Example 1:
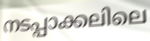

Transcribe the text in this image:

നടപ്പാക്കലിലെ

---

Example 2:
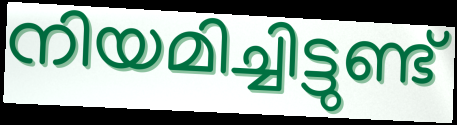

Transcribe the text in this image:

നിയമിച്ചിട്ടുണ്ട്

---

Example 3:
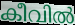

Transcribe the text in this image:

കീവിൽ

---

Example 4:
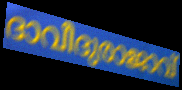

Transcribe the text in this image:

ദാവീദുരാജാവ്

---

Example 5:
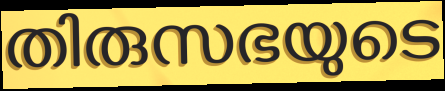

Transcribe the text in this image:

തിരുസഭയുടെ